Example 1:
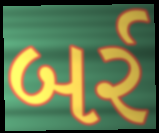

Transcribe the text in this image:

બર્ર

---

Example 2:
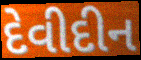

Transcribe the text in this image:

દેવીદીન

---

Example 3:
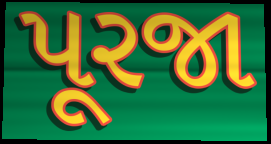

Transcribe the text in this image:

પૂરજા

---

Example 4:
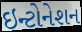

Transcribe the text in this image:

ઇન્ટોનેશન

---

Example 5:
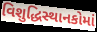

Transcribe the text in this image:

વિશુદ્ધિસ્થાનકોમાં